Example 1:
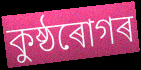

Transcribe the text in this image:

কুষ্ঠৰোগৰ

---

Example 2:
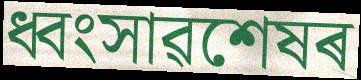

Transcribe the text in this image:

ধ্বংসাৱশেষৰ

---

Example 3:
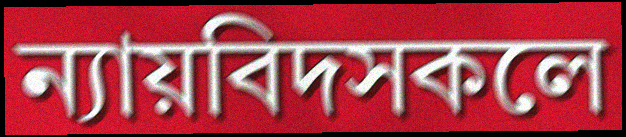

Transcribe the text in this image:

ন্যায়বিদসকলে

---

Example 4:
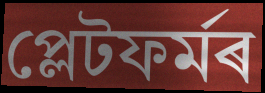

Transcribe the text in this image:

প্লেটফৰ্মৰ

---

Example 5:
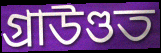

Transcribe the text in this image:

গ্ৰাউণ্ডত